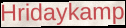
Hridaykamp